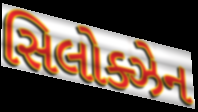
સિલોક્ઝેન